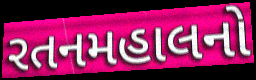
રતનમહાલનો